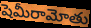
షెమీరామోతు